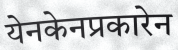
येनकेनप्रकारेन